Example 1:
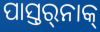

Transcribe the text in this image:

ପାସ୍ତର୍‍ନାକ୍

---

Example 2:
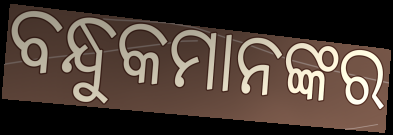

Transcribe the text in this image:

ବନ୍ଧୁକମାନଙ୍କର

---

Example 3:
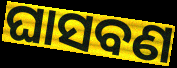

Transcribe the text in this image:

ଘାସବଣ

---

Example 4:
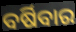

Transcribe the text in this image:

ବର୍ଷିବାର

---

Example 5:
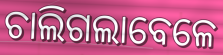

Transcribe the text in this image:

ଚାଲିଗଲାବେଳେ